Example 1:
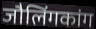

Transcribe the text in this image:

जौलिंगकांग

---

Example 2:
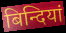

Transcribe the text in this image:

बिन्दियां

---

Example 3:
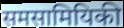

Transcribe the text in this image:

समसामियिकी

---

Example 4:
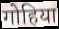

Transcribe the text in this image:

गोहिया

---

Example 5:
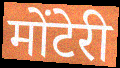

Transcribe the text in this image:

मोंटेरी